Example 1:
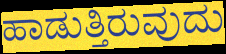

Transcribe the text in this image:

ಹಾಡುತ್ತಿರುವುದು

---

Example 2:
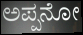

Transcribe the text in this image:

ಅಪ್ಪನೋ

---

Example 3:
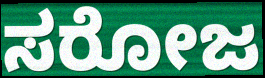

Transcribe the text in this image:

ಸರೋಜ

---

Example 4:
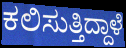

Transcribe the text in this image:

ಕಲಿಸುತ್ತಿದ್ದಾಳೆ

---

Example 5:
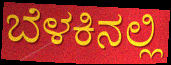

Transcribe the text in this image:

ಬೆಳಕಿನಲ್ಲಿ